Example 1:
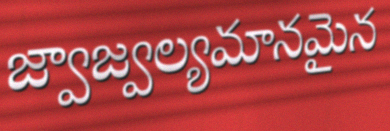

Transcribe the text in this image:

జ్వాజ్వల్యమానమైన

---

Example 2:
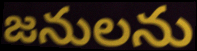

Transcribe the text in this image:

జనులను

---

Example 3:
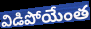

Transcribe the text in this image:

విడిపోయేంత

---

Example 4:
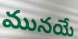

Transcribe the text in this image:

మునయే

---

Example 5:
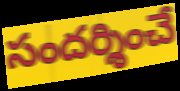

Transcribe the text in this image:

సందర్శించే